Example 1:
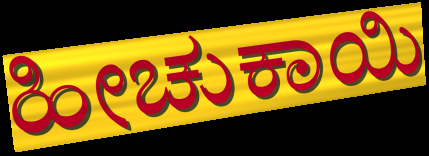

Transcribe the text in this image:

ಹೀಚುಕಾಯಿ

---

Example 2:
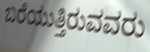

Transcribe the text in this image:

ಬರೆಯುತ್ತಿರುವವರು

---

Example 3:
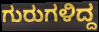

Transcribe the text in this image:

ಗುರುಗಳಿದ್ದ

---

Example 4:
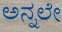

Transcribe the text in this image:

ಅನ್ನಲೇ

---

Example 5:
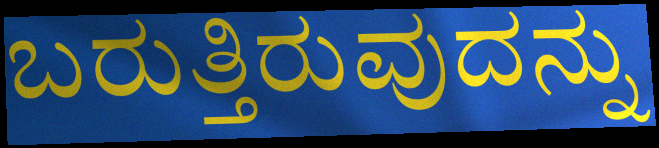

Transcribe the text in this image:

ಬರುತ್ತಿರುವುದನ್ನು